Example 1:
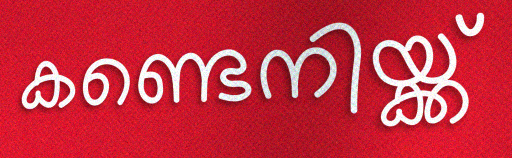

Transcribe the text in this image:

കണ്ടെനിയ്ക്ക്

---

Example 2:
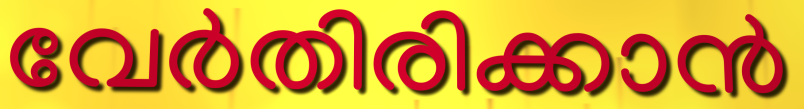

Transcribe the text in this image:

വേർതിരിക്കാൻ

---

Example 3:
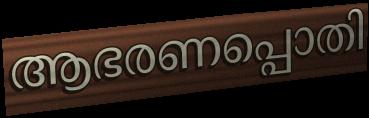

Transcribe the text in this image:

ആഭരണപ്പൊതി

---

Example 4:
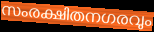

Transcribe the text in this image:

സംരക്ഷിതനഗരവും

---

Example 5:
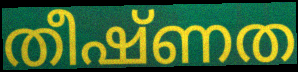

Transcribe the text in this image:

തീഷ്ണത